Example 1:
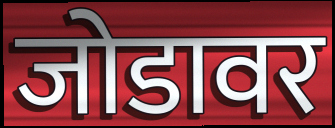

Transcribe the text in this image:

जोडावर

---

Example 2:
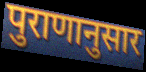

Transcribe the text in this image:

पुराणानुसार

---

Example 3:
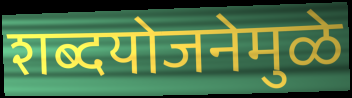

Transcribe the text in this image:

शब्दयोजनेमुळे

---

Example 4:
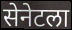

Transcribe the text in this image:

सेनेटला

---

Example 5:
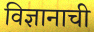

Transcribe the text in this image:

विज्ञानाची